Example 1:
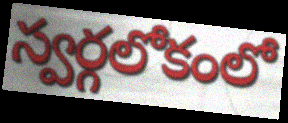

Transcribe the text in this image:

స్వర్గలోకంలో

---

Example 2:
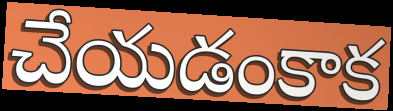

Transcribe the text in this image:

చేయడంకాక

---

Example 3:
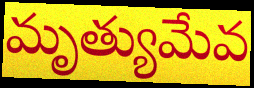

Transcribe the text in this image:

మృత్యుమేవ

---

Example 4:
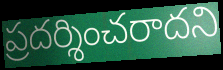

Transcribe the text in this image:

ప్రదర్శించరాదని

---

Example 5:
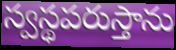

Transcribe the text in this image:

స్వస్థపరుస్తాను